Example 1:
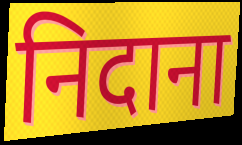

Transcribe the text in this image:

निदाना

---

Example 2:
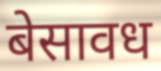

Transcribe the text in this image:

बेसावध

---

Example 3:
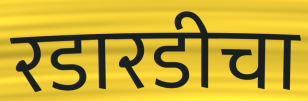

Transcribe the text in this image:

रडारडीचा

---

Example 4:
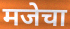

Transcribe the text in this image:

मजेचा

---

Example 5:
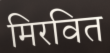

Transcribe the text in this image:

मिरवित